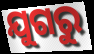
ଯୁଗରୁ